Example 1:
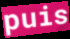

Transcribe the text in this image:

puis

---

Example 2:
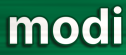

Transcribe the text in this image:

modi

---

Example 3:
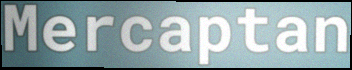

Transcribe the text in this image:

Mercaptan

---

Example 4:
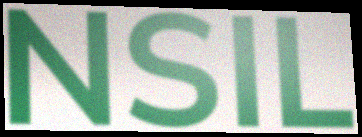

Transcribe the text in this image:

NSIL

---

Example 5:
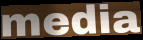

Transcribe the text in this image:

media